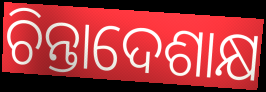
ଚିନ୍ତାଦେଶାକ୍ଷ